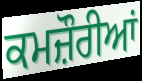
ਕਮਜ਼ੌਰੀਆਂ